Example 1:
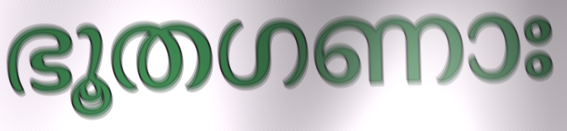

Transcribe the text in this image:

ഭൂതഗണാഃ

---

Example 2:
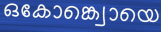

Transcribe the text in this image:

ഒകോങ്ക്വൊയെ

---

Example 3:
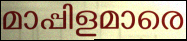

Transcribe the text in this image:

മാപ്പിളമാരെ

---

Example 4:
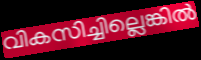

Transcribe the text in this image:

വികസിച്ചില്ലെങ്കിൽ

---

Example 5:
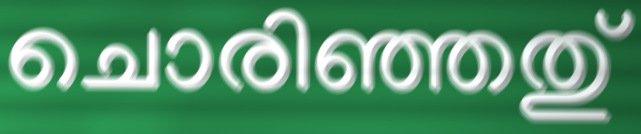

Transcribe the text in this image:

ചൊരിഞ്ഞതു്